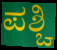
ಪಶ್ಚಿ